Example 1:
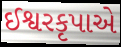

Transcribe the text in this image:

ઈશ્વરકૃપાએ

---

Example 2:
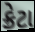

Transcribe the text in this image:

ક્રેટા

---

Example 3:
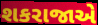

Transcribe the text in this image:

શકરાજાએ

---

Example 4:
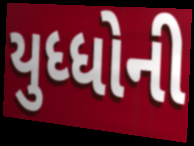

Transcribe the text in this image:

યુધ્ધોની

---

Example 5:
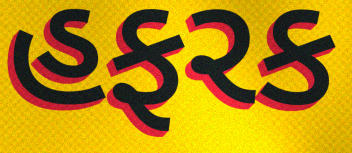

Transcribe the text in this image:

હફરક